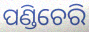
ପଣ୍ଡିଚେରି